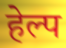
हेल्‍प